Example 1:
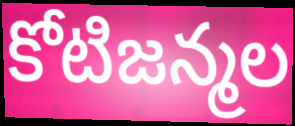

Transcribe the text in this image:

కోటిజన్మల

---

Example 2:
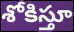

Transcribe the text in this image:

శోకిస్తూ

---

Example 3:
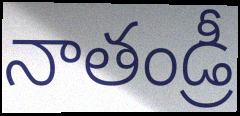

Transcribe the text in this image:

నాతండ్రీ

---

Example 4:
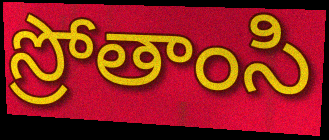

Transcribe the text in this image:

స్రోతాంసి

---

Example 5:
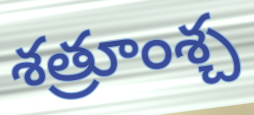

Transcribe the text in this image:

శత్రూంశ్చ